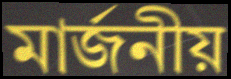
মার্জনীয়